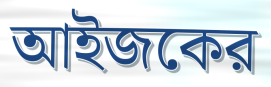
আইজকের